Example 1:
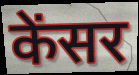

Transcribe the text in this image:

केंसर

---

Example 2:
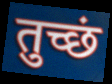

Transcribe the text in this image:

तुच्छं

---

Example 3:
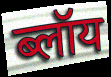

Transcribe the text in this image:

ब्लॉय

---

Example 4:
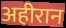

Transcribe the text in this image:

अहीरान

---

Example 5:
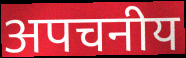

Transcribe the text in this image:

अपचनीय